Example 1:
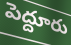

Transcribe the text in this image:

పెద్దూరు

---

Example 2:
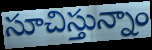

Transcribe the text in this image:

సూచిస్తున్నాం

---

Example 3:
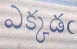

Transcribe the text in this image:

ఎక్కడఁ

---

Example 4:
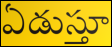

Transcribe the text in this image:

ఏడుస్తూ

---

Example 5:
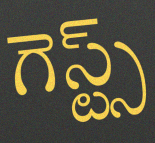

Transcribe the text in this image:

గెస్ట్స్